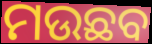
ମଉଛବ